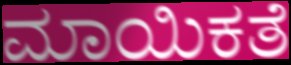
ಮಾಯಿಕತೆ